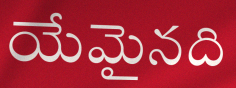
యేమైనది